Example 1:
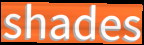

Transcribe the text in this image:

shades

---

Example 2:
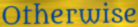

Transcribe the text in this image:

Otherwise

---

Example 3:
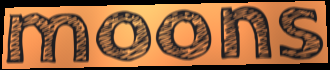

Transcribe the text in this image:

moons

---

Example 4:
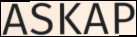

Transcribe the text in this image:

ASKAP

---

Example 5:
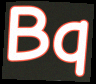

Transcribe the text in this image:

Bq